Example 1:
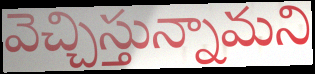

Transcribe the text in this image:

వెచ్చిస్తున్నామని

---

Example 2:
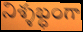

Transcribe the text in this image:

నిశ్శబ్ధంగా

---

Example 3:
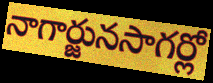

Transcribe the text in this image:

నాగార్జునసాగర్లో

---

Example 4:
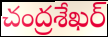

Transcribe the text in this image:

చంద్రశేఖర్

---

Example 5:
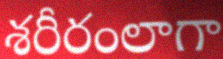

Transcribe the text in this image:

శరీరంలాగా